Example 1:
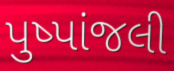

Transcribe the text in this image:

પુષ્પાંજલી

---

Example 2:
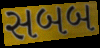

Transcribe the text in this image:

સબબ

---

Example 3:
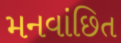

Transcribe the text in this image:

મનવાંછિત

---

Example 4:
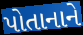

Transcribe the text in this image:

પોતાનાને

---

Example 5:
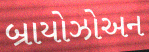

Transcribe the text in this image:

બ્રાયોઝોઅન